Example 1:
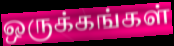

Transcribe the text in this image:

ஒருக்கங்கள்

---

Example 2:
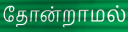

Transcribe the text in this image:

தோன்றாமல்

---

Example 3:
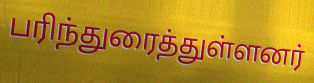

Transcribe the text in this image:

பரிந்துரைத்துள்ளனர்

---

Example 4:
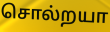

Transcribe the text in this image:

சொல்றயா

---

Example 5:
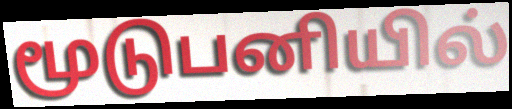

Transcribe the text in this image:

மூடுபனியில்